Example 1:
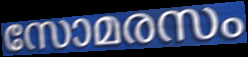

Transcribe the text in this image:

സോമരസം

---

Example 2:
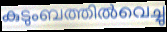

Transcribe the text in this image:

കുടുംബത്തിൽവെച്ചു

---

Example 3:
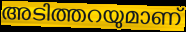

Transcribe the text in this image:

അടിത്തറയുമാണ്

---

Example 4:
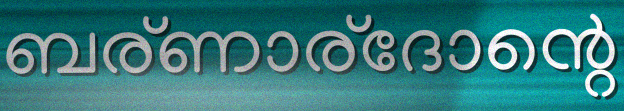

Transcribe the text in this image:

ബര്ണാര്ദോന്റെ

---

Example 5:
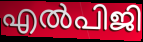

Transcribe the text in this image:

എൽപിജി